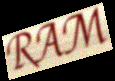
RAM